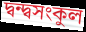
দ্বন্দ্বসংকুল